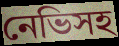
নেভিসহ